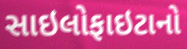
સાઇલોફાઇટાનો